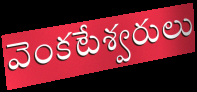
వెంకటేశ్వరులు